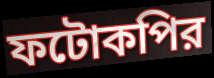
ফটোকপির